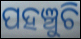
ପହଞ୍ଚୁଚି